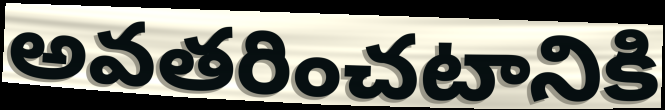
అవతరించటానికి